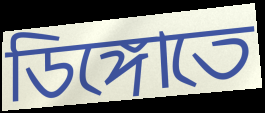
ডিঙ্গোতে